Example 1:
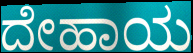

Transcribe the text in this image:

ದೇಹಾಯ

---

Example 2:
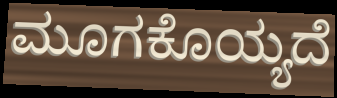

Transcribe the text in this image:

ಮೂಗಕೊಯ್ಯದೆ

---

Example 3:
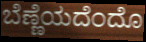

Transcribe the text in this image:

ಬೆಣ್ಣೆಯದೆಂದೊ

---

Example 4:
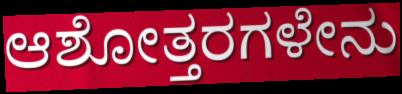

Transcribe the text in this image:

ಆಶೋತ್ತರಗಳೇನು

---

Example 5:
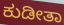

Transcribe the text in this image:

ಕುಡೀತಾ